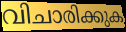
വിചാരിക്കുക